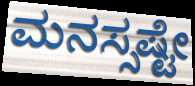
ಮನಸ್ಸಷ್ಟೇ